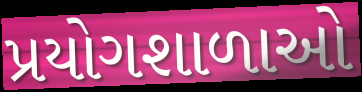
પ્રયોગશાળાઓ